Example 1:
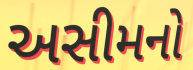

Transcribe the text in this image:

અસીમનો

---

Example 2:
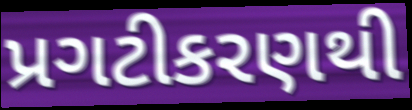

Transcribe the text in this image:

પ્રગટીકરણથી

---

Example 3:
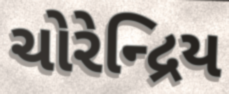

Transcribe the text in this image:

ચોરેન્દ્રિય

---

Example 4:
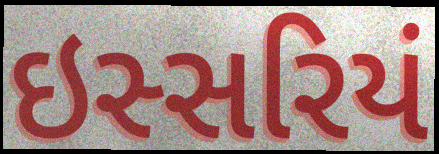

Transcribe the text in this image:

ઇસ્સરિયં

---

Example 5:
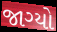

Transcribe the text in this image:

જાગ્યો